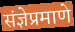
संज्ञेप्रमाणे